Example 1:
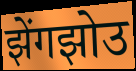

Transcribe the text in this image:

झेंगझोउ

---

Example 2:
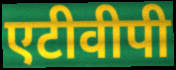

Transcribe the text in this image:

एटीवीपी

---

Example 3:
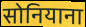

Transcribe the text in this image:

सोनियाना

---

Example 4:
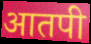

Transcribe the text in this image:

आतपी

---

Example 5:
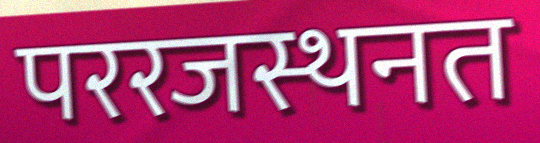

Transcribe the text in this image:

पररजस्थनत